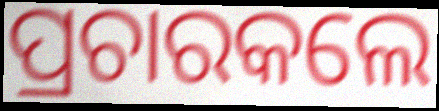
ପ୍ରଚାରକଲେ